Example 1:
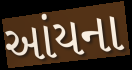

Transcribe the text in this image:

આંયના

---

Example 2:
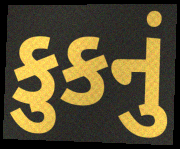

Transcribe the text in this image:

કુકનું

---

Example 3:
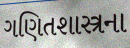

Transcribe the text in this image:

ગણિતશાસ્ત્રના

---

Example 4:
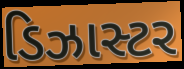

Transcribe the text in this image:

ડિઝાસ્ટર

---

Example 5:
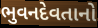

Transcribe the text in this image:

ભુવનદેવતાનો